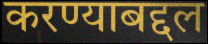
करण्याबद्दल